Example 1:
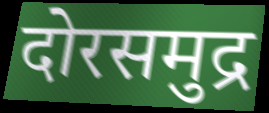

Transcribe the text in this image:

दोरसमुद्र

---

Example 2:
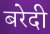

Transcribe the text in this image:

बरेदी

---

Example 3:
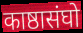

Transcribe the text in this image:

काष्ठासंघो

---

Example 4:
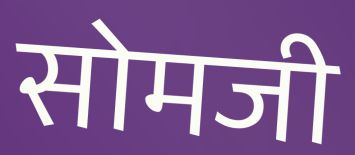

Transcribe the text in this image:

सोमजी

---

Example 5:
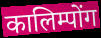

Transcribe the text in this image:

कालिम्पोंग